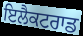
ਇਲੈਕਟਰਾਡ